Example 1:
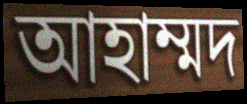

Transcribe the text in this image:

আহাম্মদ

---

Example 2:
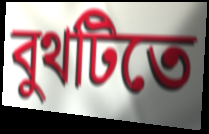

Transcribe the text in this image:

বুথটিতে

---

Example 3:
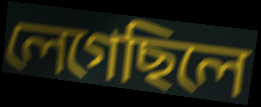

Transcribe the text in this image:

লেগেছিলে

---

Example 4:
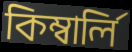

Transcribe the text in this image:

কিম্বার্লি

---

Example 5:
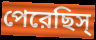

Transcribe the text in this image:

পেরেছিস্